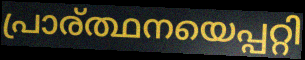
പ്രാര്ത്ഥനയെപ്പറ്റി